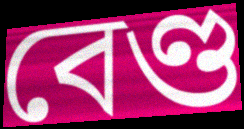
বেণ্ড